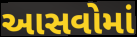
આસવોમાં